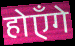
होएँगे